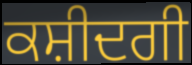
ਕਸ਼ੀਦਗੀ